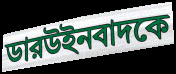
ডারউইনবাদকে